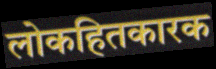
लोकहितकारक